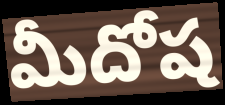
మీదోష